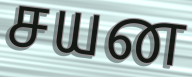
சயன